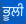
ਭੂਲੀ